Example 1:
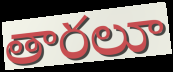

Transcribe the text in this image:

తారలూ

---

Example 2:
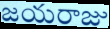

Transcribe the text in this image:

జయరాజు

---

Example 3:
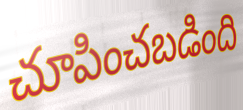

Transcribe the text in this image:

చూపించబడింది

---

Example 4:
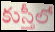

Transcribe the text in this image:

కుస్తీలో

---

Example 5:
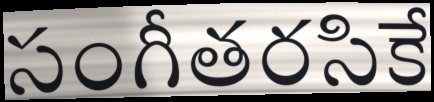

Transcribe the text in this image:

సంగీతరసికే